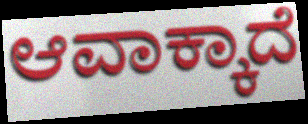
ಆವಾಕ್ಕಾದೆ